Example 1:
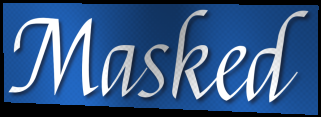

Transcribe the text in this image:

Masked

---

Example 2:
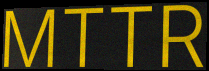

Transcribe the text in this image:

MTTR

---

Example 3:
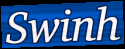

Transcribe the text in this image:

Swinh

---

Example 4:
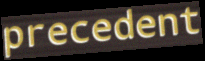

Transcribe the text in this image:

precedent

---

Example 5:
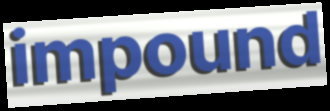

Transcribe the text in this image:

impound